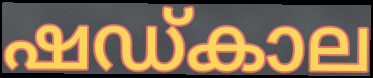
ഷഡ്കാല